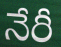
నేరీ